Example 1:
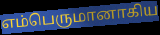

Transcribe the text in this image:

எம்பெருமானாகிய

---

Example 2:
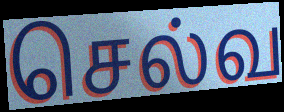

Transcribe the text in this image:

செல்வ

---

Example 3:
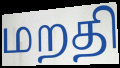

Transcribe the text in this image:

மறதி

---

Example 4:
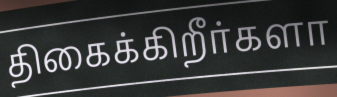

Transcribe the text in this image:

திகைக்கிறீர்களா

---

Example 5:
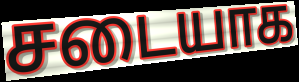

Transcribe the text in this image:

சடையாக